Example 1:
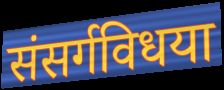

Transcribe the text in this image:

संसर्गविधया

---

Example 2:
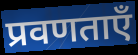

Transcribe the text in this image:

प्रवणताएँ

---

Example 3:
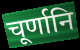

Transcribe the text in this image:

चूर्णानि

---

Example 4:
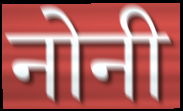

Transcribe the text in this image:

नोनी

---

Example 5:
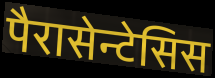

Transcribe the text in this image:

पैरासेन्टेसिस